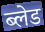
ब्लेड